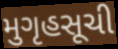
મુગૃહસૂચી